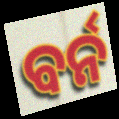
ବର୍ନ